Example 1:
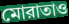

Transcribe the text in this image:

মোরাতাও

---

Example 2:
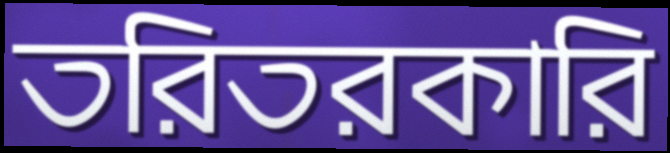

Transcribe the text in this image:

তরিতরকারি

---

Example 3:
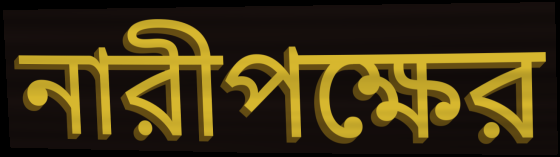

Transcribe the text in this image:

নারীপক্ষের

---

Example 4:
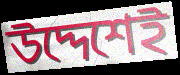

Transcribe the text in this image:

উদ্দেশেই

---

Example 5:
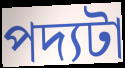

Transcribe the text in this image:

পদ্যটা